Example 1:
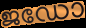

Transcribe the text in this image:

ജഡോ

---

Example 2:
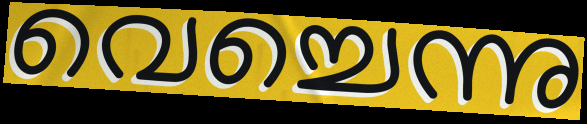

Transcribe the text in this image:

വെച്ചെന്നു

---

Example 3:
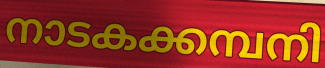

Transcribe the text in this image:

നാടകക്കമ്പനി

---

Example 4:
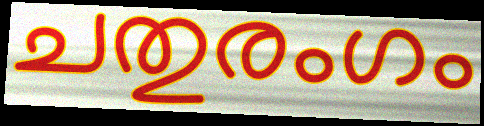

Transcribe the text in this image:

ചതുരംഗം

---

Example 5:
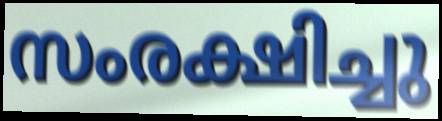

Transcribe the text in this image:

സംരക്ഷിച്ചു